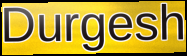
Durgesh